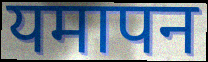
यमापन